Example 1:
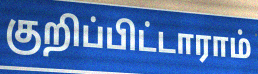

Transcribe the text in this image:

குறிப்பிட்டாராம்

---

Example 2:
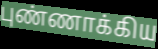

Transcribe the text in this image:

புண்ணாக்கிய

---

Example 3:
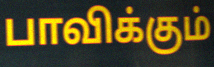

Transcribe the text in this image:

பாவிக்கும்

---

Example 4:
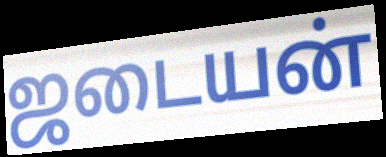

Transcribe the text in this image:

ஜடையன்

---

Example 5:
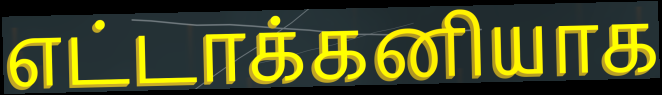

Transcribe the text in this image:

எட்டாக்கனியாக